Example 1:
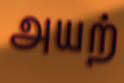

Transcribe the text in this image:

அயற்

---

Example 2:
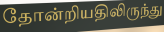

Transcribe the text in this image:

தோன்றியதிலிருந்து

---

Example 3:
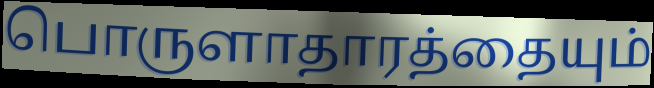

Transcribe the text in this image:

பொருளாதாரத்தையும்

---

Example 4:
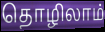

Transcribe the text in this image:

தொழிலாம்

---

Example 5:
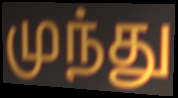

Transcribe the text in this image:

முந்து